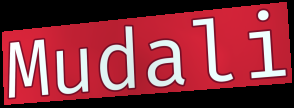
Mudali